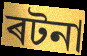
ৰটনা